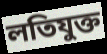
লতিযুক্ত